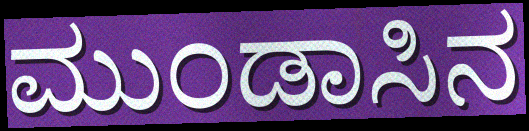
ಮುಂಡಾಸಿನ